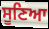
ਸੂਣਿਆ